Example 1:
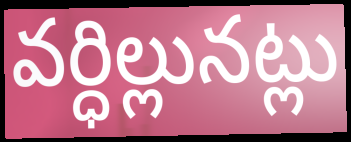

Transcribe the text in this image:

వర్ధిల్లునట్లు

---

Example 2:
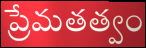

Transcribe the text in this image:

ప్రేమతత్వం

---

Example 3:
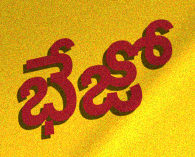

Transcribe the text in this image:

భేజో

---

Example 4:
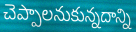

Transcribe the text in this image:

చెప్పాలనుకున్నదాన్ని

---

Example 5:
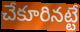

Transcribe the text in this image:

చేకూరినట్టే